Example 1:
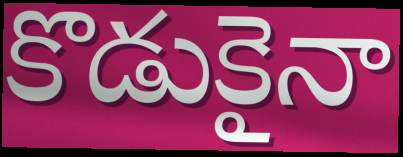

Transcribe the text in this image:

కొడుకైనా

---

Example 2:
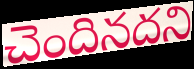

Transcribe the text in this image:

చెందినదని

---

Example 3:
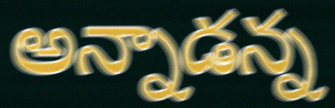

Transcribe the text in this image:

అన్నాడన్న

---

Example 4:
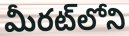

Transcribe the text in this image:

మీరట్‌లోని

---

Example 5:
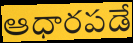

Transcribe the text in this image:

ఆధారపడే